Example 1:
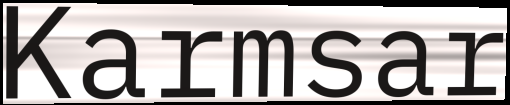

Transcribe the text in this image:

Karmsar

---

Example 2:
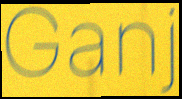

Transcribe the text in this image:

Ganj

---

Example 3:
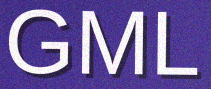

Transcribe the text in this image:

GML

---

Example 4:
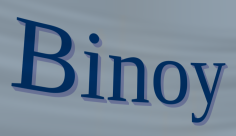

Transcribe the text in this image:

Binoy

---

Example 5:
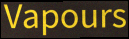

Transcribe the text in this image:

Vapours